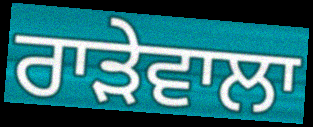
ਰਾੜੇਵਾਲਾ